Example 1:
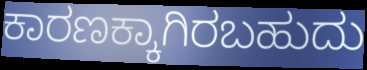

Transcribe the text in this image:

ಕಾರಣಕ್ಕಾಗಿರಬಹುದು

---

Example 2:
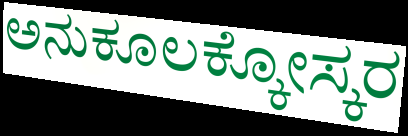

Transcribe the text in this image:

ಅನುಕೂಲಕ್ಕೋಸ್ಕರ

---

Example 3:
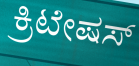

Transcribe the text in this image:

ಕ್ರಿಟೇಷಸ್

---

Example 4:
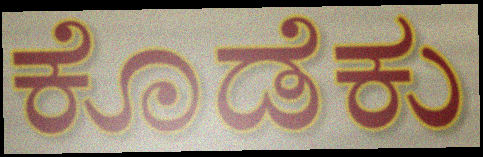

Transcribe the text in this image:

ಕೊಡೆಕು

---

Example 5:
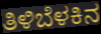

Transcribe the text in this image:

ತಿಳಿಬೆಳಕಿನ